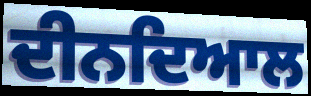
ਦੀਨਦਿਆਲ